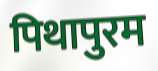
पिथापुरम